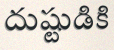
దుష్టుడికి